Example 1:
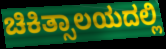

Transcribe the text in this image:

ಚಿಕಿತ್ಸಾಲಯದಲ್ಲಿ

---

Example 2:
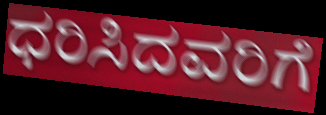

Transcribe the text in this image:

ಧರಿಸಿದವರಿಗೆ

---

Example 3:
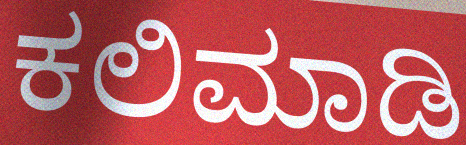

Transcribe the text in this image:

ಕಲಿಮಾಡಿ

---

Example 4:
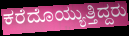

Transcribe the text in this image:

ಕರೆದೊಯ್ಯುತ್ತಿದ್ದರು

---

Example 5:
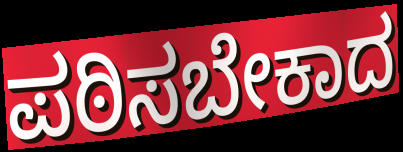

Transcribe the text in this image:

ಪಠಿಸಬೇಕಾದ